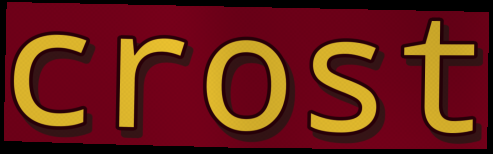
crost